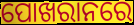
ପୋଖରାନରେ